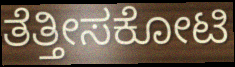
ತೆತ್ತೀಸಕೋಟಿ